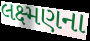
લક્ષ્મણના